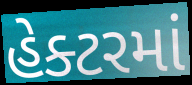
હેક્ટરમાં